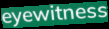
eyewitness